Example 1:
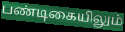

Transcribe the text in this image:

பண்டிகையிலும்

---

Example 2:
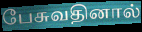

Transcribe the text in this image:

பேசுவதினால்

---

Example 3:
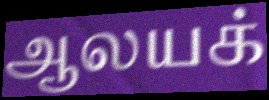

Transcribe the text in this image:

ஆலயக்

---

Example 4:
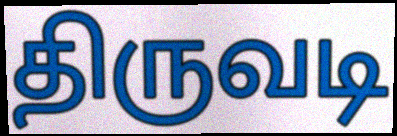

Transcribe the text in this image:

திருவடி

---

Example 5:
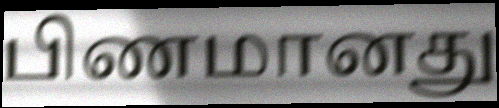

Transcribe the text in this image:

பிணமானது